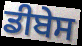
ਡੀਬੇਸ